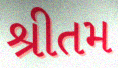
શ્રીતમ